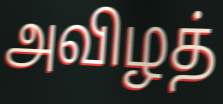
அவிழத்